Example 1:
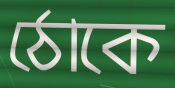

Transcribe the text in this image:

ঠোকে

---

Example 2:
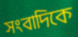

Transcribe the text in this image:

সংবাদিকে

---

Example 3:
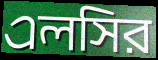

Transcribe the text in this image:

এলসির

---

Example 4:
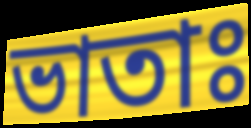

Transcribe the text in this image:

ভাতাঃ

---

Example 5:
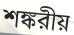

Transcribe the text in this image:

শঙ্করীয়